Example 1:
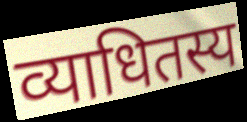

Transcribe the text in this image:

व्याधितस्य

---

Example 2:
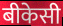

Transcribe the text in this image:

बीकेसी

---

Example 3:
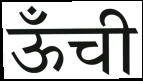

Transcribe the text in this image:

ऊँची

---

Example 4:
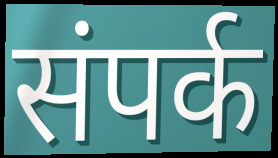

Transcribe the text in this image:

संपर्क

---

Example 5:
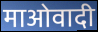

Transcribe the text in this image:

माओवादी